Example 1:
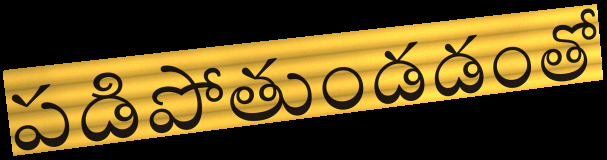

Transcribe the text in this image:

పడిపోతుండడంతో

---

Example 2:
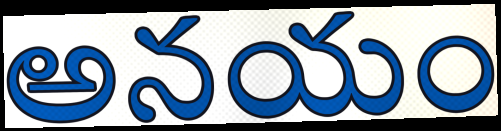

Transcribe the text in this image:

అనయం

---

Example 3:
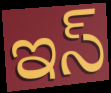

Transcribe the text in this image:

ఇస్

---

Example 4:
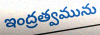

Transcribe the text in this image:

ఇంద్రత్వమును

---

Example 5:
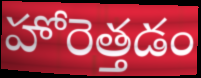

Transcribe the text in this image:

హోరెత్తడం